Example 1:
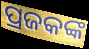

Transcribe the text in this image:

ପ୍ରଜକଙ୍କ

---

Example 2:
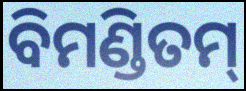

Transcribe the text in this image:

ବିମଣ୍ଡିତମ୍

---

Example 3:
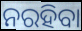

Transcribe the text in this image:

ନରହିବା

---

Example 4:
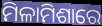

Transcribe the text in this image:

ମିଳାମିଶାରେ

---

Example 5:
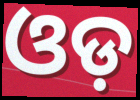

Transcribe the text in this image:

ଓଡ଼